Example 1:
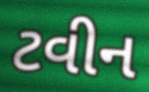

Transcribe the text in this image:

ટવીન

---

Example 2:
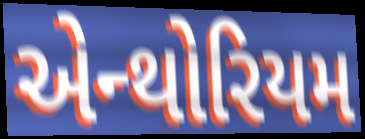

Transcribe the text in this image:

એન્થોરિયમ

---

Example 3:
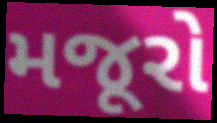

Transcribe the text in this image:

મજૂરો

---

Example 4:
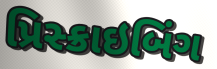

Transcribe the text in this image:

પ્રિસ્ક્રાઇબિંગ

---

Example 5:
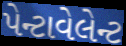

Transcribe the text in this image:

પેન્ટાવેલેન્ટ